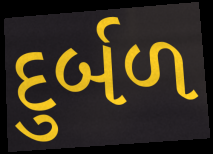
દુર્બળ